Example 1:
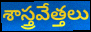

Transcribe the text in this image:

శాస్త్రవేత్తలు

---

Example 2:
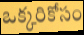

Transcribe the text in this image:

ఒక్కరికోసం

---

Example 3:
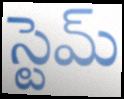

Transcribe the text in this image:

స్టెమ్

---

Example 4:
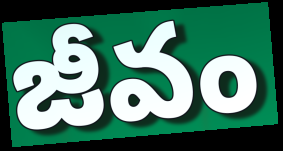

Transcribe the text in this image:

జీవం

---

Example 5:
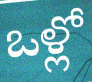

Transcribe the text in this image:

ఒళ్లో